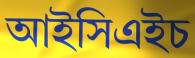
আইসিএইচ